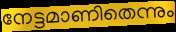
നേട്ടമാണിതെന്നും